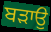
ਬਡ਼ਾਉ